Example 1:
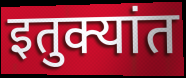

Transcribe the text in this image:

इतुक्यांत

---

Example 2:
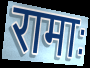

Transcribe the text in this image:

रामाः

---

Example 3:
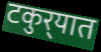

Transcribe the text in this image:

टकुर्‍यात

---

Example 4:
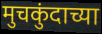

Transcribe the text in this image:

मुचकुंदाच्या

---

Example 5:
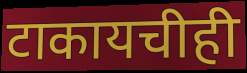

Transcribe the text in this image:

टाकायचीही